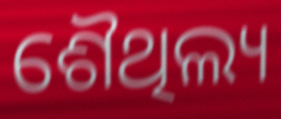
ଶୈଥିଲ୍ୟ